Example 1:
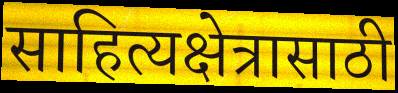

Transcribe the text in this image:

साहित्यक्षेत्रासाठी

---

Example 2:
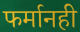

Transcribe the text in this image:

फर्मानही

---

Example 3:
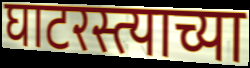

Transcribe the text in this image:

घाटरस्त्याच्या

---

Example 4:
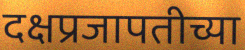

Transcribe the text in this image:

दक्षप्रजापतीच्या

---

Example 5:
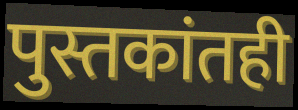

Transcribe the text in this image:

पुस्तकांतही